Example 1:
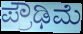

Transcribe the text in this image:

ಪ್ರೌಢಿಮೆ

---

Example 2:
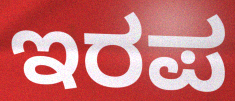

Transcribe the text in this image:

ಇರಪ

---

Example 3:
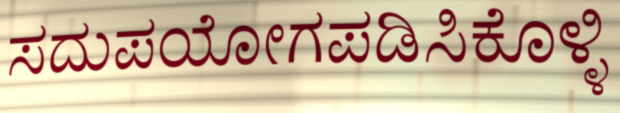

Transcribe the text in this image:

ಸದುಪಯೋಗಪಡಿಸಿಕೊಳ್ಳಿ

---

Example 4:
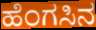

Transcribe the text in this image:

ಹೆಂಗಸಿನ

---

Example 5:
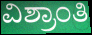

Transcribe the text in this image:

ವಿಶ್ರಾಂತಿ